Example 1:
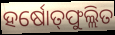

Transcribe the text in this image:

ହର୍ଷୋତ୍‌ଫୁଲ୍ଲିତ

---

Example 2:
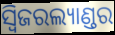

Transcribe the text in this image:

ସ୍ୱିଜରଲ୍ୟାଣ୍ଡର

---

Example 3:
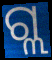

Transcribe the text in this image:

ଗ୍ଲ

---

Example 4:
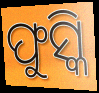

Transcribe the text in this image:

ଫୁସ୍କି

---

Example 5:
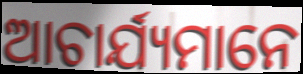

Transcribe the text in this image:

ଆଚାର୍ଯ୍ୟମାନେ